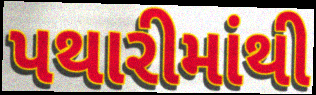
પથારીમાંથી